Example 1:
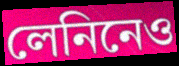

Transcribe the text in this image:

লেনিনেও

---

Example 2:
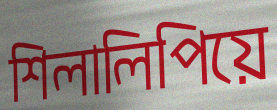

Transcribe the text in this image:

শিলালিপিয়ে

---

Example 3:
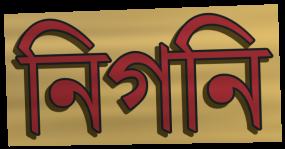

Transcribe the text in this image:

নিগনি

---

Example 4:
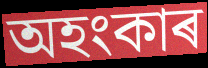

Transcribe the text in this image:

অহংকাৰ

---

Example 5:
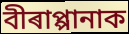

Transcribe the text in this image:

বীৰাপ্পানাক